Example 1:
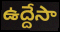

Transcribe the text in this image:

ఉద్దేసా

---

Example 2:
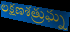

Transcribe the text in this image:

లక్షణశత్రుఘ్న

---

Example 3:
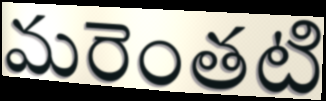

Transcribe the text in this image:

మరెంతటి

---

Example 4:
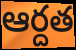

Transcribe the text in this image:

ఆర్దత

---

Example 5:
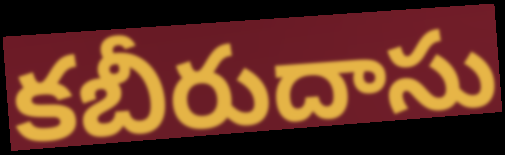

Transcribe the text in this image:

కబీరుదాసు